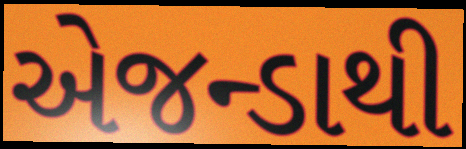
એજન્ડાથી